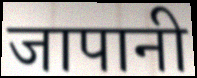
जापानी